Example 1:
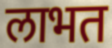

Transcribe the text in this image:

लाभत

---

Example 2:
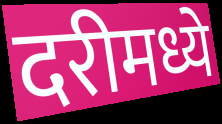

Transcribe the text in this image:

दरीमध्ये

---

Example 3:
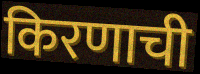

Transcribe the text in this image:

किरणाची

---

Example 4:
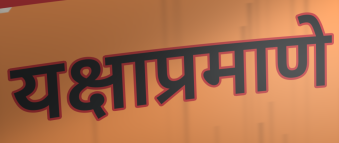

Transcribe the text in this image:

यक्षाप्रमाणे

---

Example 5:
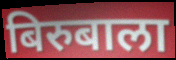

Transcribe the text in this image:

बिरुबाला